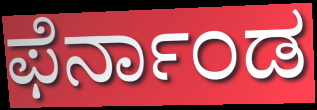
ಫೆರ್ನಾಂಡ